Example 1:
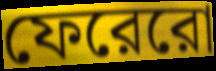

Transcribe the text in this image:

ফেরেরো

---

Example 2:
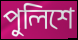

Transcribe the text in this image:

পুলিশে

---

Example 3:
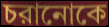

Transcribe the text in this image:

চরানোকে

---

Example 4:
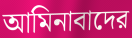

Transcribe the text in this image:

আমিনাবাদের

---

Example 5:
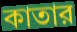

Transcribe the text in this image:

কাতার